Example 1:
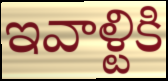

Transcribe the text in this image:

ఇవాళ్టికి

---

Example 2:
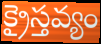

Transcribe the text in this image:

క్రైస్తవ్యం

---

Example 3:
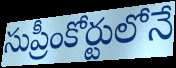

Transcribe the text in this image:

సుప్రీంకోర్టులోనే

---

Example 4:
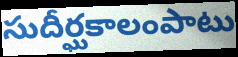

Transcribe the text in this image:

సుదీర్ఘకాలంపాటు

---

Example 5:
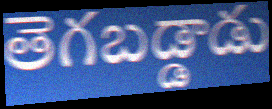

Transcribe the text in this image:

తెగబడ్డాడు